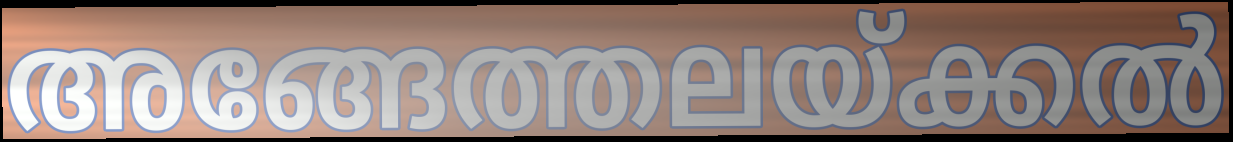
അങ്ങേത്തലയ്ക്കൽ